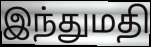
இந்துமதி